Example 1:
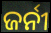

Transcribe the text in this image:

ଜର୍ନୀ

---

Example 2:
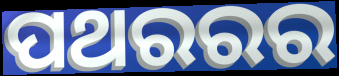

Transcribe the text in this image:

ପଥରରର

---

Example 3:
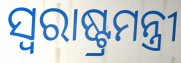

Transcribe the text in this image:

ସ୍ବରାଷ୍ଟ୍ରମନ୍ତ୍ରୀ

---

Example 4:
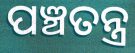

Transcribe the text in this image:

ପଞ୍ଚତନ୍ତ୍ର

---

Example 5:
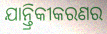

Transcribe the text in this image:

ଯାନ୍ତ୍ରିକୀକରଣର